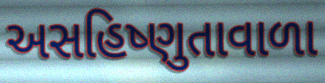
અસહિષ્ણુતાવાળા